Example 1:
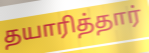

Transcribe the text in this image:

தயாரித்தார்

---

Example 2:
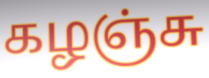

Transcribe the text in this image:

கழஞ்சு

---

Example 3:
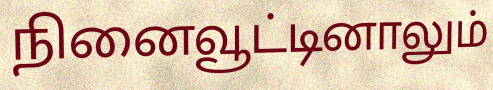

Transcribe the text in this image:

நினைவூட்டினாலும்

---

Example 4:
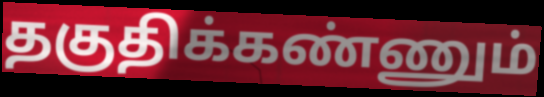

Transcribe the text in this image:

தகுதிக்கண்ணும்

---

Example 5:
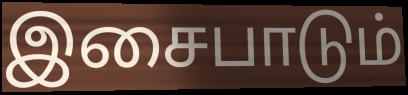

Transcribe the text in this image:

இசைபாடும்